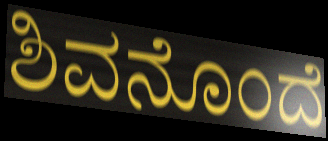
ಶಿವನೊಂದೆ